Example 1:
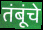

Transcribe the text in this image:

तंबूंचे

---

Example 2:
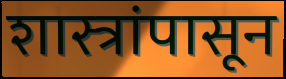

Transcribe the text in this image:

शास्त्रांपासून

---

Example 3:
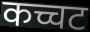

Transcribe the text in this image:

कच्चट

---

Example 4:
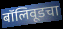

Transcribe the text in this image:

बॉलिवूडचा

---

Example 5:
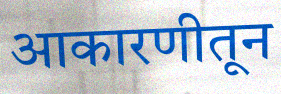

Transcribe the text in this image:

आकारणीतून